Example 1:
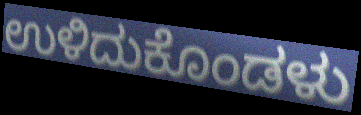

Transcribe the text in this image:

ಉಳಿದುಕೊಂಡಳು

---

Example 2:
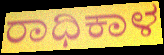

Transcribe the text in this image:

ರಾಧಿಕಾಳ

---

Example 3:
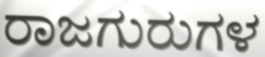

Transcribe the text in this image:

ರಾಜಗುರುಗಳ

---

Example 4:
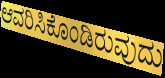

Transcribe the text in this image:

ಆವರಿಸಿಕೊಂಡಿರುವುದು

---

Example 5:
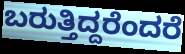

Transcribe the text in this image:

ಬರುತ್ತಿದ್ದರೆಂದರೆ